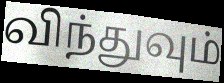
விந்துவும்